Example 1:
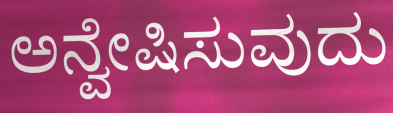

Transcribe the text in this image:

ಅನ್ವೇಷಿಸುವುದು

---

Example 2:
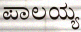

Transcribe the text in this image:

ಪಾಲಯ್ಯ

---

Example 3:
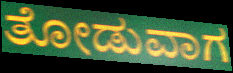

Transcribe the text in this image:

ತೋಡುವಾಗ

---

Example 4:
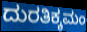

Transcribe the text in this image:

ದುರತಿಕ್ಕಮಂ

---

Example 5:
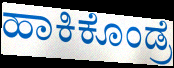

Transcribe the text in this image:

ಹಾಕಿಕೊಂಡ್ರೆ